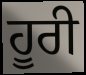
ਹੂਰੀ